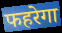
फहरेगा